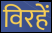
विरहें